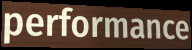
performance